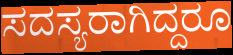
ಸದಸ್ಯರಾಗಿದ್ದರೂ